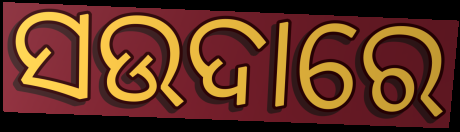
ସଉଦାରେ